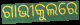
ଗାଭୀକୁଲରେ